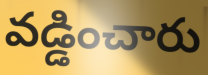
వడ్డించారు